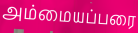
அம்மையப்பரை